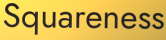
Squareness